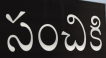
సంచికి